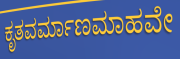
ಕೃತವರ್ಮಾಣಮಾಹವೇ